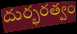
దుర్భరత్వం